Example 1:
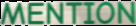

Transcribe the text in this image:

MENTION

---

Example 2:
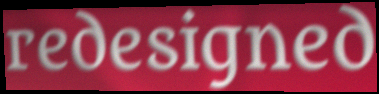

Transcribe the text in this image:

redesigned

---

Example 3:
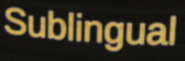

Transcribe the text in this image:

Sublingual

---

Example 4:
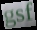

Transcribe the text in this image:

gsf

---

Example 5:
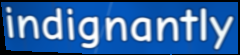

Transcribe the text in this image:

indignantly